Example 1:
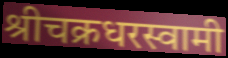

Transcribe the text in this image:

श्रीचक्रधरस्वामी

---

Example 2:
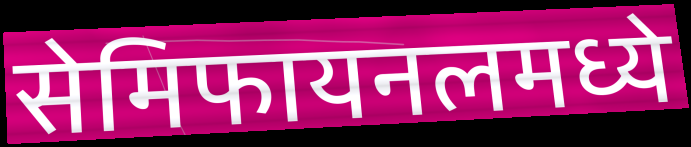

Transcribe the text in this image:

सेमिफायनलमध्ये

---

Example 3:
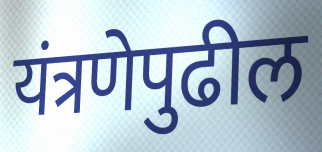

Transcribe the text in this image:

यंत्रणेपुढील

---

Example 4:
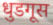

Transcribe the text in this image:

धुडगूस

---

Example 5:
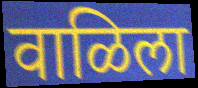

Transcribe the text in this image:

वाळिला